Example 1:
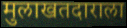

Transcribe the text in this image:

मुलाखतदाराला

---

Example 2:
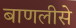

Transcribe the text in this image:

बाणलीसे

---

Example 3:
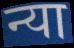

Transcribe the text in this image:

न्या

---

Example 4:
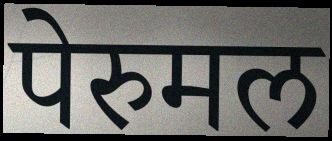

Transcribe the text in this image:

पेरुमल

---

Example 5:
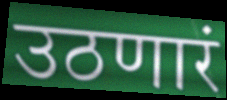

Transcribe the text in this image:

उठणारं